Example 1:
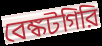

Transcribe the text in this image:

বেঙ্কটগিরি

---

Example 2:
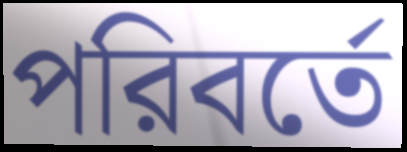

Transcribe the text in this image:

পরিবর্তে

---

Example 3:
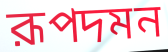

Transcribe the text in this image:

রূপদমন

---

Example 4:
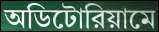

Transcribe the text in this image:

অডিটোরিয়ামে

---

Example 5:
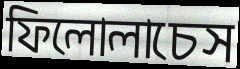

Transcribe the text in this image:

ফিলোলাচেস